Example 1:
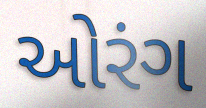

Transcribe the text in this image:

ઓરંગ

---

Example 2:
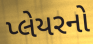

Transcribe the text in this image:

પ્લેયરનો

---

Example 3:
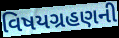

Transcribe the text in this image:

વિષયગ્રહણની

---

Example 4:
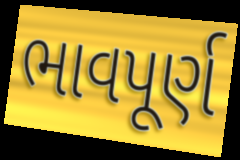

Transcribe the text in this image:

ભાવપૂર્ણ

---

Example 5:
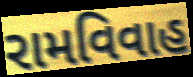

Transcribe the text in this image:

રામવિવાહ